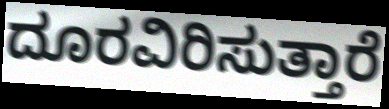
ದೂರವಿರಿಸುತ್ತಾರೆ